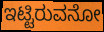
ಇಟ್ಟಿರುವನೋ